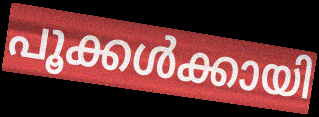
പൂക്കൾക്കായി